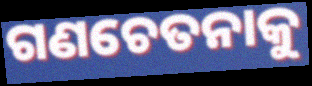
ଗଣଚେତନାକୁ